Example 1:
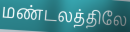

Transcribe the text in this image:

மண்டலத்திலே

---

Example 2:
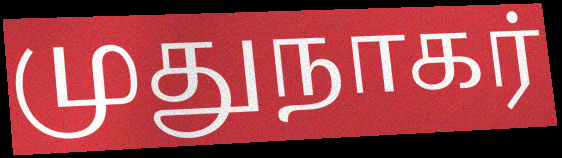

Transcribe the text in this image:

முதுநாகர்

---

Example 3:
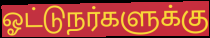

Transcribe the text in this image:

ஓட்டுநர்களுக்கு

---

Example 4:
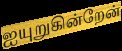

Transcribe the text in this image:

ஐயுறுகின்றேன்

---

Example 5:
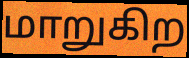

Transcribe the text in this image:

மாறுகிற